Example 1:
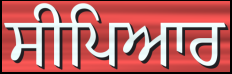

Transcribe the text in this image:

ਸੀਪਿਆਰ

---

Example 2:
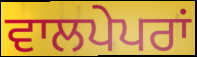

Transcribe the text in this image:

ਵਾਲਪੇਪਰਾਂ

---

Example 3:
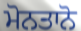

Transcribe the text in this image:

ਮੋਨਤਾਨੋ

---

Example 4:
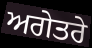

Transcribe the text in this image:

ਅਗੇਤਰੇ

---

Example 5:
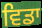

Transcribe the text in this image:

ਵਿਡਾ